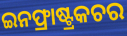
ଇନଫ୍ରାଷ୍ଟ୍ରକଚର